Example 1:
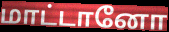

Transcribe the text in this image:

மாட்டானோ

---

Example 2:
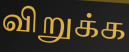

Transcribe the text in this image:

விறுக்க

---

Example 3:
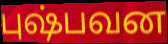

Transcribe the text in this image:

புஷ்பவன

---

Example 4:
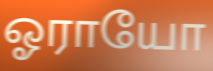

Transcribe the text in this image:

ஓராயோ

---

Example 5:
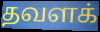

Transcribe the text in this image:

தவளக்